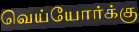
வெய்யோர்க்கு